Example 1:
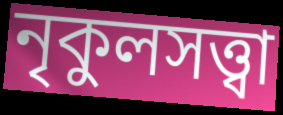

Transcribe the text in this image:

নৃকুলসত্ত্বা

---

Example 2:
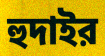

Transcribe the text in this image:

হুদাইর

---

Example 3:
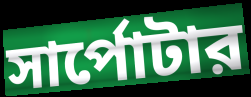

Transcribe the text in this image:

সার্পোটার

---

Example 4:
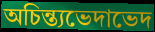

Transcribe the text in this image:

অচিন্ত্যভেদাভেদ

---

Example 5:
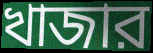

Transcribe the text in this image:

খাজার